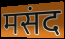
मसंद